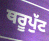
ਥਰੂਪੁੱਟ